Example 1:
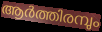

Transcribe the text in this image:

ആർത്തിരമ്പും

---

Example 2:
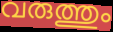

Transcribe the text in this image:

വരുത്തും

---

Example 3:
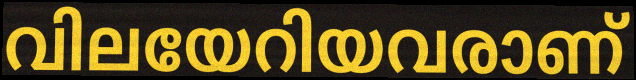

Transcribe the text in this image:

വിലയേറിയവരാണ്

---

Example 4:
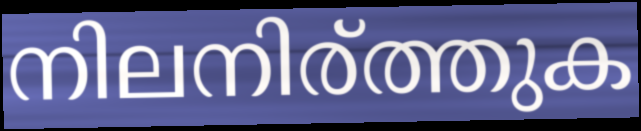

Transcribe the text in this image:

നിലനിര്ത്തുക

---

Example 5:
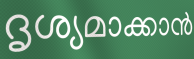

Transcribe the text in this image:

ദൃശ്യമാക്കാൻ